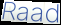
Raad